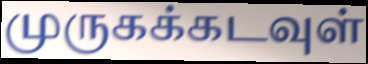
முருகக்கடவுள்